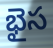
భైస